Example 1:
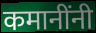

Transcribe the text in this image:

कमानींनी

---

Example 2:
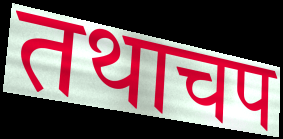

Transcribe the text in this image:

तथाचप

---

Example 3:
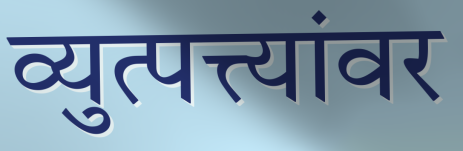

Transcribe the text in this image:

व्युत्पत्त्यांवर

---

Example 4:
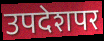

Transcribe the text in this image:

उपदेशपर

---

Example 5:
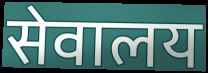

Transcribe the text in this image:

सेवालय